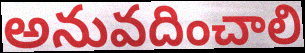
అనువదించాలి